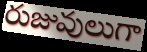
రుజువులుగా